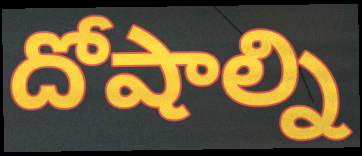
దోషాల్ని